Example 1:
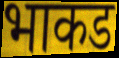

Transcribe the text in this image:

भाकड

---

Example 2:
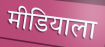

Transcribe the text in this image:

मीडियाला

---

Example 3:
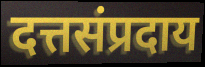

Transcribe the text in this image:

दत्तसंप्रदाय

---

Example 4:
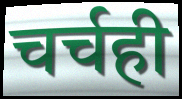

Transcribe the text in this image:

चर्चही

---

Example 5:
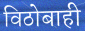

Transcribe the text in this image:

विठोबाही